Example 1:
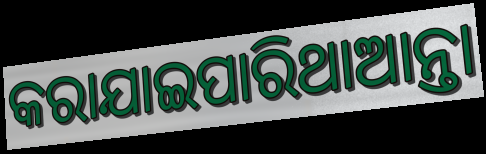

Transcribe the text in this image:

କରାଯାଇପାରିଥାଆନ୍ତା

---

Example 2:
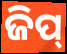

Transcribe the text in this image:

ଜିପ୍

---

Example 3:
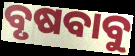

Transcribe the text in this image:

ବୃଷବାବୁ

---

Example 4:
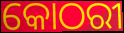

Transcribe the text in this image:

କୋଠରୀ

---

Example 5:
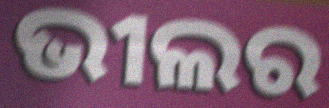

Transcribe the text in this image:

ଭୀଲର